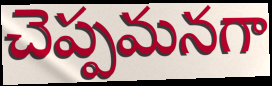
చెప్పమనగా